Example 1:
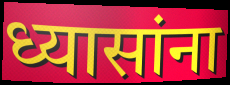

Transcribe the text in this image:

ध्यासांना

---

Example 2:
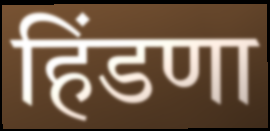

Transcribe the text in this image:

हिंडणा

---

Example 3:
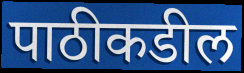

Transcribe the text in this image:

पाठीकडील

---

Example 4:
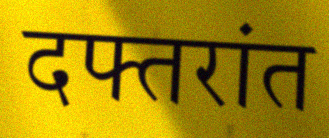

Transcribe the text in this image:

दफ्तरांत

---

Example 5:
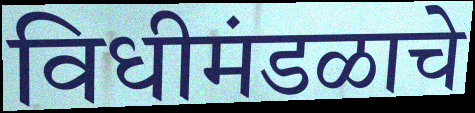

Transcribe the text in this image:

विधीमंडळाचे